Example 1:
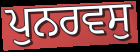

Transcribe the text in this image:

ਪੁਨਰਵਸੁ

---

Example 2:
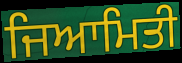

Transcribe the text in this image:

ਜਿਆਮਿਤੀ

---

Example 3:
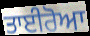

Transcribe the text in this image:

ਤਾਈਰੋਆ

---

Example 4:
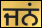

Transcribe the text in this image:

ਜਨਂ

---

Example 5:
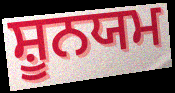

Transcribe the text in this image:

ਸ਼ੂਨਯਮ